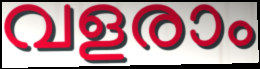
വളരാം